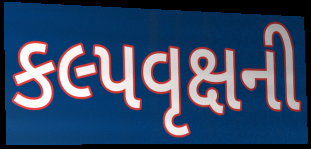
કલ્પવૃક્ષની